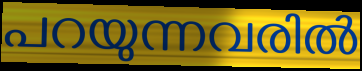
പറയുന്നവരിൽ